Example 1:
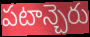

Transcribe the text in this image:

పటాన్చెరు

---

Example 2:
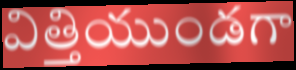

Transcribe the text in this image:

విత్తియుండగా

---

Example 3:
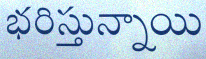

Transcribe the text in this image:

భరిస్తున్నాయి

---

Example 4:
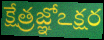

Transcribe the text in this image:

క్షేత్రజ్ఞోఽక్షర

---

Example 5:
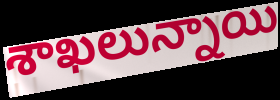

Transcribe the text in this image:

శాఖలున్నాయి